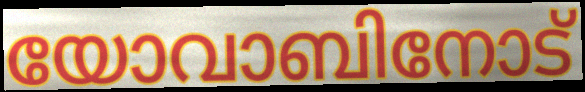
യോവാബിനോട്